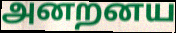
அனறனய